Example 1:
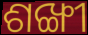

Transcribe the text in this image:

ଶଙ୍ଖୀ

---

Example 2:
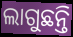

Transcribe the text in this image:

ଲାଗୁଛନ୍ତି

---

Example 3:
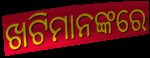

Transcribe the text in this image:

ଖଟିମାନଙ୍କରେ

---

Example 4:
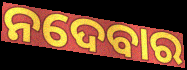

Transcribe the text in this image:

ନଦେବାର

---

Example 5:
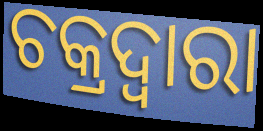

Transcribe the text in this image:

ଚକ୍ରଦ୍ୱାରା